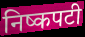
निष्कपटी